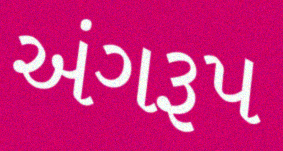
અંગરૂપ